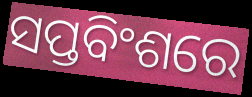
ସପ୍ତବିଂଶରେ